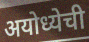
अयोध्येची